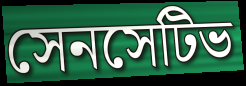
সেনসেটিভ